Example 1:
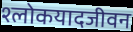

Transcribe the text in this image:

श्लोकयादजीवन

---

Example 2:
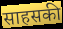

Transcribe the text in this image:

साहसकी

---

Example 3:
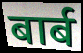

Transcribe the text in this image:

बार्ब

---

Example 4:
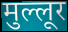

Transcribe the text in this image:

मुल्लूर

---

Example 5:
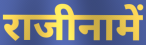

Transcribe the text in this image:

राजीनामें